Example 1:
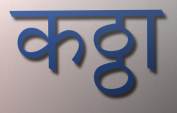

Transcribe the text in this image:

कठ्ठा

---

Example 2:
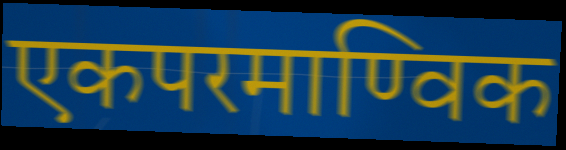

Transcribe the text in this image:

एकपरमाण्विक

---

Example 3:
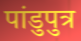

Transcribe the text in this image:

पांडुपुत्र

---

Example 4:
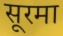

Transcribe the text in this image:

सूरमा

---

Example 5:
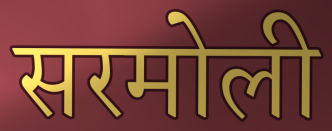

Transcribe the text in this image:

सरमोली